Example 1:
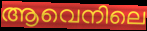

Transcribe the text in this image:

ആവെനിലെ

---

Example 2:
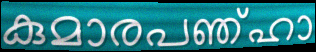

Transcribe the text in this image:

കുമാരപഞ്ഹാ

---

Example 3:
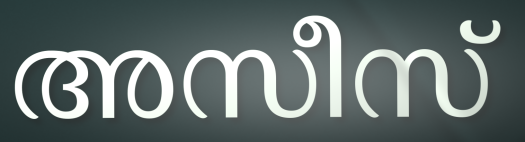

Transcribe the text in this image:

അസീസ്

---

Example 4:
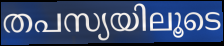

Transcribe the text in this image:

തപസ്യയിലൂടെ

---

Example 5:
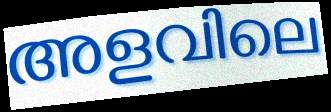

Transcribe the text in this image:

അളവിലെ